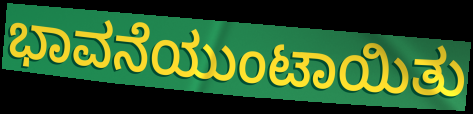
ಭಾವನೆಯುಂಟಾಯಿತು